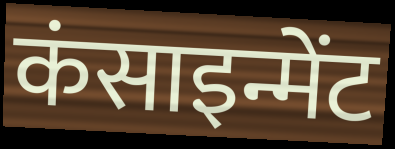
कंसाइन्मेंट